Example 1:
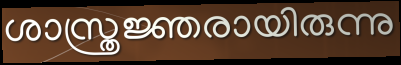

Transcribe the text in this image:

ശാസ്ത്രജ്ഞരായിരുന്നു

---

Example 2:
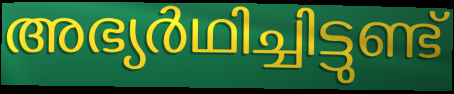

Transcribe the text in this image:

അഭ്യർഥിച്ചിട്ടുണ്ട്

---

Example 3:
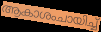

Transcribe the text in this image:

ആകാശംചായിച്ച്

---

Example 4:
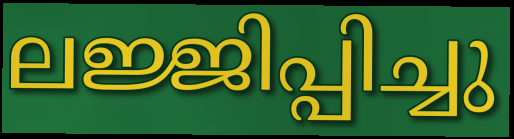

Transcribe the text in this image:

ലജ്ജിപ്പിച്ചു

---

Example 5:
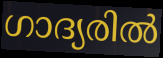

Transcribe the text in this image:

ഗാദ്യരിൽ